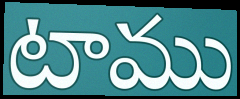
టాము